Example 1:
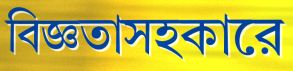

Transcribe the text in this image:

বিজ্ঞতাসহকারে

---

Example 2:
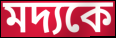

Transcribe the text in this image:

মদ্যকে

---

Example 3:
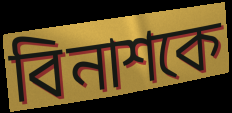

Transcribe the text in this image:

বিনাশকে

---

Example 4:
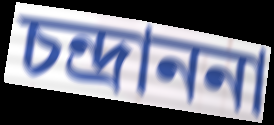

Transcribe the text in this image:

চন্দ্রাননা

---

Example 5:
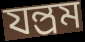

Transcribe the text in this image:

যন্ত্রম